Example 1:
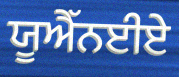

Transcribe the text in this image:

ਯੂਐੱਨਈਏ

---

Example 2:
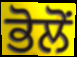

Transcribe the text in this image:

ਭੋਲੋਂ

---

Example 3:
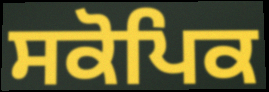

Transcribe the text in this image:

ਸਕੋਪਿਕ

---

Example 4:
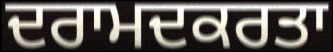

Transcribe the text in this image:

ਦਰਾਮਦਕਰਤਾ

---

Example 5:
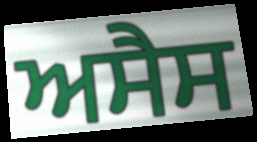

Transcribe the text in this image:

ਅਸੈਸ